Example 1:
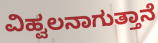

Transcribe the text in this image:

ವಿಹ್ವಲನಾಗುತ್ತಾನೆ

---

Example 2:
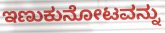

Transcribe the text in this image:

ಇಣುಕುನೋಟವನ್ನು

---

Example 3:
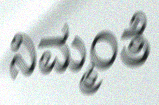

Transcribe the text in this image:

ನಿಮ್ಮಂತೆ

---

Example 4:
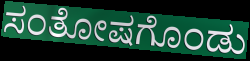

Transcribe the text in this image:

ಸಂತೋಷಗೊಂಡು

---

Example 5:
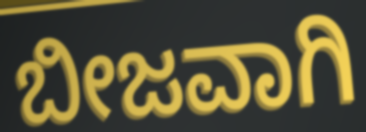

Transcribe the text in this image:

ಬೀಜವಾಗಿ